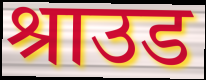
श्राउड